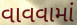
વાવવામાં